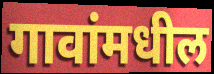
गावांमधील